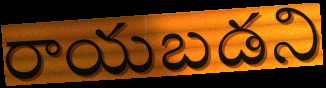
రాయబడని